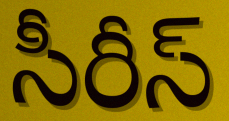
సీరీస్